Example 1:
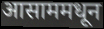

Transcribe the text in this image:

आसाममधून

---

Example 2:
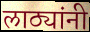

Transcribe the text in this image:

लाठ्यांनी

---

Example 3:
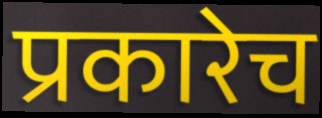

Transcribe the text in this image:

प्रकारेच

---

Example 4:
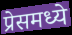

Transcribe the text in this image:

प्रेसमध्ये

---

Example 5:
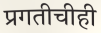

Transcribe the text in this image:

प्रगतीचीही